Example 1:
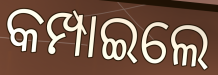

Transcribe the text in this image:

କମ୍ପାଇଲେ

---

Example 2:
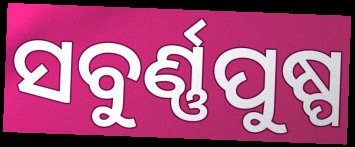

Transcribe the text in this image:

ସବୁର୍ଣ୍ଣପୁଷ୍ପ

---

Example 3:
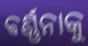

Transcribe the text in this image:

ଵର୍ଣ୍ଣନାକୁ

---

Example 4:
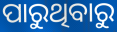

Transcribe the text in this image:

ପାରୁଥିବାରୁ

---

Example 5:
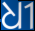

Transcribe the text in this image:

ଧୀ